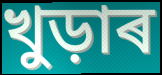
খুড়াৰ